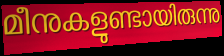
മീനുകളുണ്ടായിരുന്നു